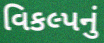
વિકલ્પનું